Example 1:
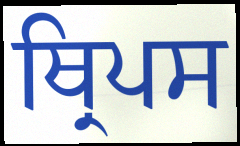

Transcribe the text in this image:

ਥ੍ਰਿਪਸ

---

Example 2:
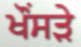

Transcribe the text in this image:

ਖੌਂਸੜੇ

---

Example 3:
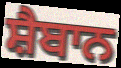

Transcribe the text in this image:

ਸ਼ੈਬਾਨ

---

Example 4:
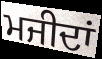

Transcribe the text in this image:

ਮਜੀਦਾਂ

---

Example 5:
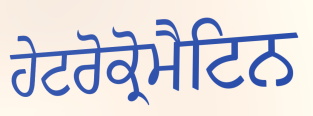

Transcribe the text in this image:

ਹੇਟਰੋਕ੍ਰੋਮੈਟਿਨ